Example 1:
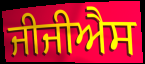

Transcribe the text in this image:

ਜੀਜੀਐਸ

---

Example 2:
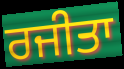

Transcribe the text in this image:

ਰਜੀਤਾ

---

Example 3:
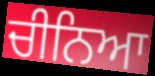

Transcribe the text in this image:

ਚੀਨਿਆ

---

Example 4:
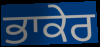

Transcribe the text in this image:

ਭਾਕੇਰ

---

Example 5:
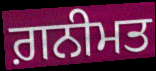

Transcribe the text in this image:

ਗ਼ਨੀਮਤ